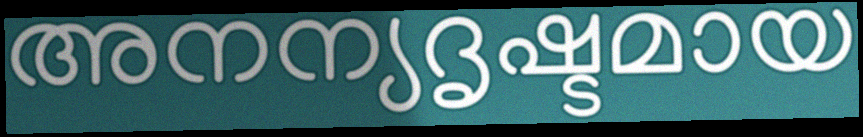
അനന്യദൃഷ്ടമായ